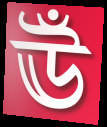
ঊঁ